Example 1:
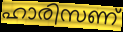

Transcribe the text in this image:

ഹാരിസണ്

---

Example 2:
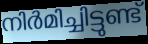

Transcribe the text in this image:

നിർമിച്ചിട്ടുണ്ട്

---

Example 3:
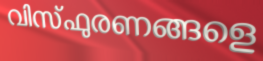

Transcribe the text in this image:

വിസ്ഫുരണങ്ങളെ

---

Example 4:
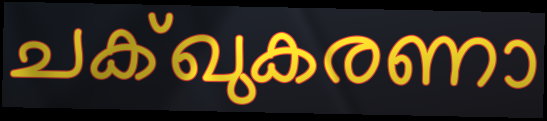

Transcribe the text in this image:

ചക്ഖുകരണാ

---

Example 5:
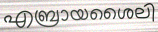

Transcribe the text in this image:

എബ്രായശൈലി